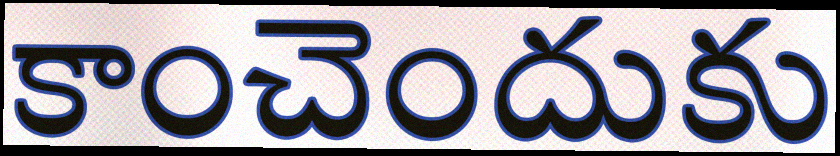
కాంచెందుకు